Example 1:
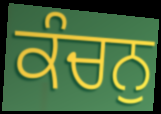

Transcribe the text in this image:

ਕੰਚਨੁ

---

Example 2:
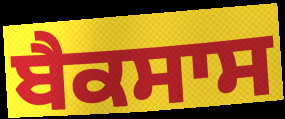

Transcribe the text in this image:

ਬੈਕਸਾਸ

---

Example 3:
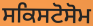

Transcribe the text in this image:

ਸਕਿਸਟੋਸੋਮ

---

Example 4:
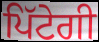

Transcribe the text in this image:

ਪਿੱਟੇਗੀ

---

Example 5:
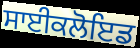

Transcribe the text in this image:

ਸਾਈਕਲੋਇਡ